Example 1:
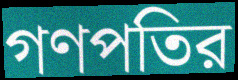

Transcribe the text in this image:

গণপতির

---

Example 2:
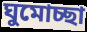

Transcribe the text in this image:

ঘুমোচ্ছা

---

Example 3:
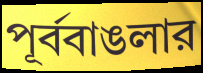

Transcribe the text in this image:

পূর্ববাঙলার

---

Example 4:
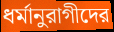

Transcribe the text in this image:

ধর্মানুরাগীদের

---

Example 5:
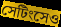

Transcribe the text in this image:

সেটিংসেও